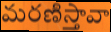
మరణిస్తావా